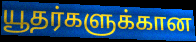
யூதர்களுக்கான